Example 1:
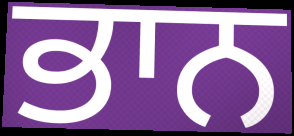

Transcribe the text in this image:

ਭਾਨ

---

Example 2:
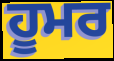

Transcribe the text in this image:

ਹੂਮਰ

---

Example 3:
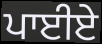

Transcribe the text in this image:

ਪਾਈਏ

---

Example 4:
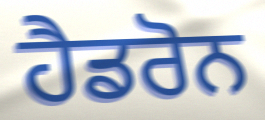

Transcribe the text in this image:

ਹੈਡਰੋਨ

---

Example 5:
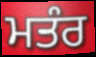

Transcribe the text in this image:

ਮਤੰਰ